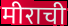
मीराची